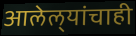
आलेल्यांचाही